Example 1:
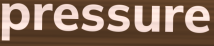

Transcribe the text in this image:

pressure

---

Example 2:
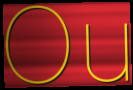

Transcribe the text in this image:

Ou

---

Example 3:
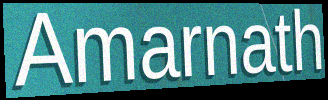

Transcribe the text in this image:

Amarnath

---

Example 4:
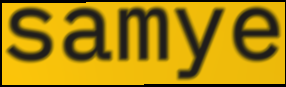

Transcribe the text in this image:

samye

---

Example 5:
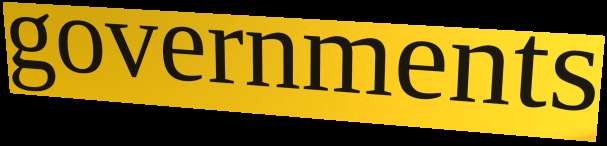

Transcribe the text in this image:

governments